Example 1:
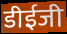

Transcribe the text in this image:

डीईजी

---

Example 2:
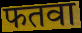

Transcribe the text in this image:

फतवा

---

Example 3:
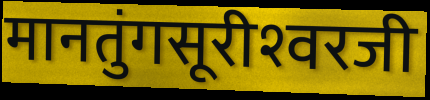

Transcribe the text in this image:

मानतुंगसूरीश्वरजी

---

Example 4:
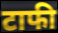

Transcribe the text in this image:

टाफी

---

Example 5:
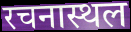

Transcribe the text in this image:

रचनास्थल